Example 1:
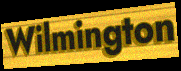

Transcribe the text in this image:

Wilmington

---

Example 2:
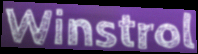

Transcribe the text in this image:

Winstrol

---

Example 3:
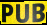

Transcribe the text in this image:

PUB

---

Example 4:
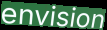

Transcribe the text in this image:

envision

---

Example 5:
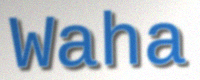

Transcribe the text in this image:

Waha